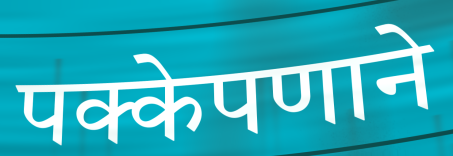
पक्केपणाने